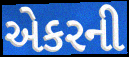
એકરની